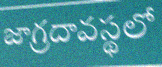
జాగ్రదావస్థలో